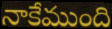
నాకేముంది